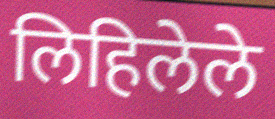
लिहिलेले